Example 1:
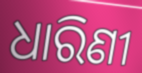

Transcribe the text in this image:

ଧାରିଣୀ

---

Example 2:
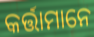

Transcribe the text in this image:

କର୍ତ୍ତାମାନେ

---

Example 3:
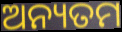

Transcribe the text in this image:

ଅନ୍ୟତମ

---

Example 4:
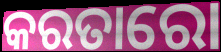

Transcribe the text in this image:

କରତାରୋ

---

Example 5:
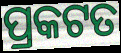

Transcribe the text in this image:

ପ୍ରକଟତ